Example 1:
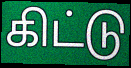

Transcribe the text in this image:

கிட்டு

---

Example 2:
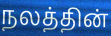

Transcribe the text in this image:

நலத்தின்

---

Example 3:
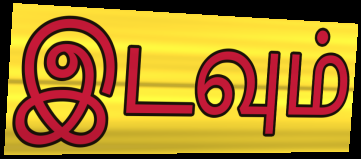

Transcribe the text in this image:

இடவும்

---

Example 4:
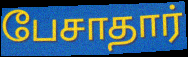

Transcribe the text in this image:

பேசாதார்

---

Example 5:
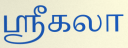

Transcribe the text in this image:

ஶ்ரீகலா